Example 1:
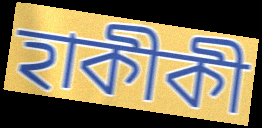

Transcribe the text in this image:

হাকীকী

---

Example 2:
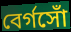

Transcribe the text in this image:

বের্গসোঁ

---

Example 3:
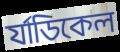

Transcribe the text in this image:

র্যাডিকেল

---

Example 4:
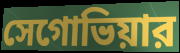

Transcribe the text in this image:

সেগোভিয়ার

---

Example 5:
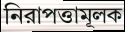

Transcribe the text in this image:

নিরাপত্তামূলক